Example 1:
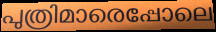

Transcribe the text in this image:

പുത്രിമാരെപ്പോലെ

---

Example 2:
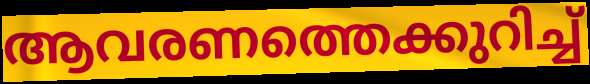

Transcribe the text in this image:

ആവരണത്തെക്കുറിച്ച്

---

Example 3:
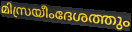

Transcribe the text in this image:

മിസ്രയീംദേശത്തും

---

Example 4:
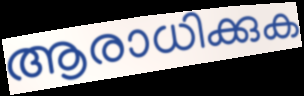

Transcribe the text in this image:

ആരാധിക്കുക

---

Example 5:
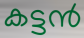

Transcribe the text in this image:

കട്ടൻ